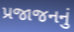
પ્રજાજનનું